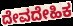
ದೇವದೇಹಿಕ